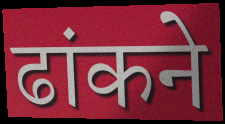
ढांकने